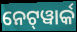
ନେଟ୍‌ୱାର୍କ